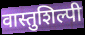
वास्तुशिल्पी